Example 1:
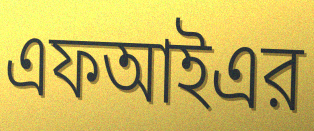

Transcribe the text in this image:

এফআইএর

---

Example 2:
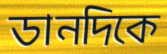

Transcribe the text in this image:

ডানদিকে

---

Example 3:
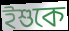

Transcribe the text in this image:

ইশুকে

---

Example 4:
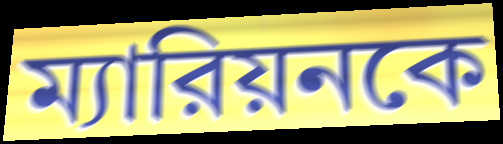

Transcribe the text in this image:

ম্যারিয়নকে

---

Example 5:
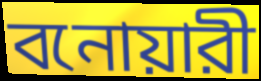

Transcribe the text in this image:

বনোয়ারী